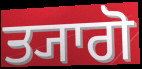
ਤ੍ਯਾਗੋ